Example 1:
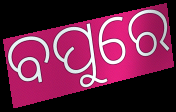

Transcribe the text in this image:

ବପୁରେ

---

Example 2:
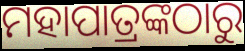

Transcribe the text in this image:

ମହାପାତ୍ରଙ୍କଠାରୁ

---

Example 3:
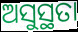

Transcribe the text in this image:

ଅସୁସ୍ଥତା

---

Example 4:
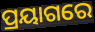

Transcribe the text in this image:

ପ୍ରୟାଗରେ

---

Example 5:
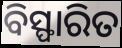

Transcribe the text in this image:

ବିସ୍ଫାରିତ